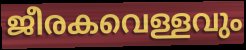
ജീരകവെള്ളവും